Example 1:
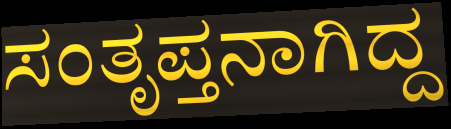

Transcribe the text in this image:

ಸಂತೃಪ್ತನಾಗಿದ್ದ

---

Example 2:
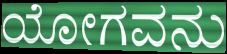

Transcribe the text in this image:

ಯೋಗವನು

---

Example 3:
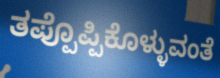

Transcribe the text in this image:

ತಪ್ಪೊಪ್ಪಿಕೊಳ್ಳುವಂತೆ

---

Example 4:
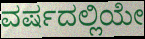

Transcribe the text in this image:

ವರ್ಷದಲ್ಲಿಯೇ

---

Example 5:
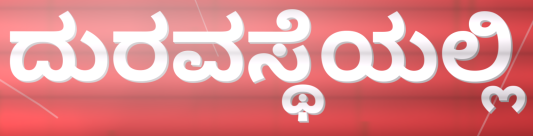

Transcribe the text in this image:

ದುರವಸ್ಥೆಯಲ್ಲಿ